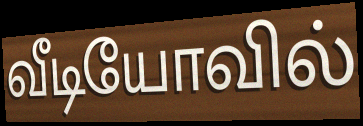
வீடியோவில்